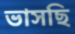
ভাসছি